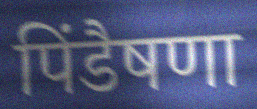
पिंडैषणा